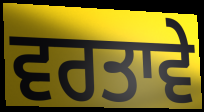
ਵਰਤਾਵੇ